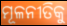
ମୂଳନୀତିକୁ